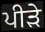
ਪੀੜੇ